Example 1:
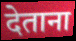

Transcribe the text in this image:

देताना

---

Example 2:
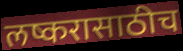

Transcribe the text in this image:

लष्करासाठीच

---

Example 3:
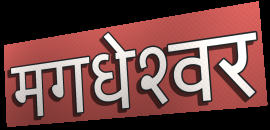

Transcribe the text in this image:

मगधेश्वर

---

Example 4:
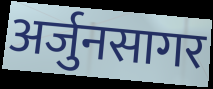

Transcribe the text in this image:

अर्जुनसागर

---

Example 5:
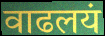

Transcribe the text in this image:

वाढलयं